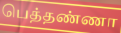
பெத்தண்ணா